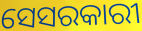
ସେସରକାରୀ